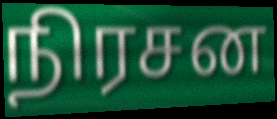
நிரசன